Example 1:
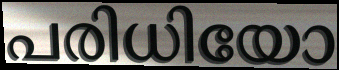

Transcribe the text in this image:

പരിധിയോ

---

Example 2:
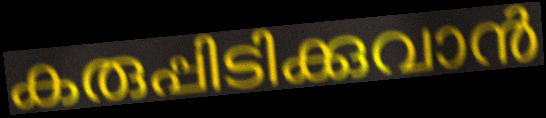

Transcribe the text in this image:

കരുപ്പിടിക്കുവാൻ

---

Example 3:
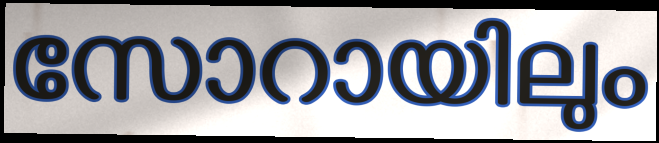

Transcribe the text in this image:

സോറായിലും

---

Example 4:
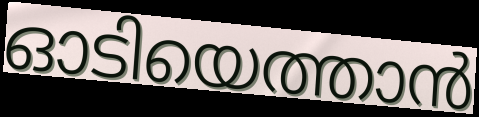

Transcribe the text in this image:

ഓടിയെത്താൻ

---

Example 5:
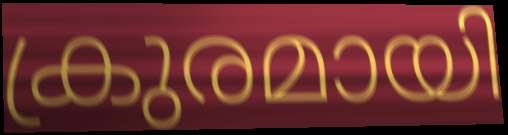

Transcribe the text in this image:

ക്രുരമായി